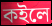
কইলে